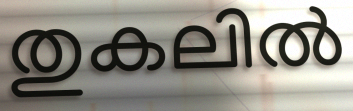
തുകലിൽ